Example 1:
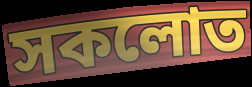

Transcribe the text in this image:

সকলোত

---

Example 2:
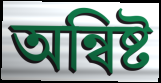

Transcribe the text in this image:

অন্বিষ্ট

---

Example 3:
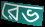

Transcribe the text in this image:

ৱেভ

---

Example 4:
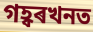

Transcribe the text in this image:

গহ্বৰখনত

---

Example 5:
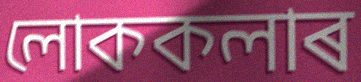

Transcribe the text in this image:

লোককলাৰ